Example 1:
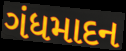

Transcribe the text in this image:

ગંધમાદન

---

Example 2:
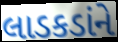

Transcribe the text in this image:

લાડકડાંને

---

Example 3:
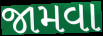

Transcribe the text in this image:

જામવા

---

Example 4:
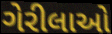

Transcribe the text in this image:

ગેરીલાઓ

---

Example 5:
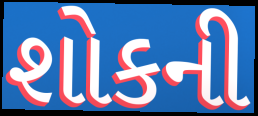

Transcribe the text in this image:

શોકની